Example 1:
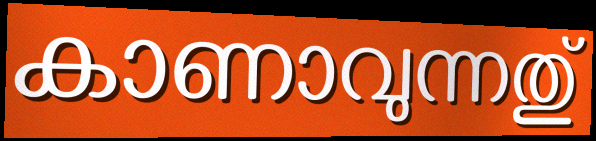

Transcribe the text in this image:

കാണാവുന്നതു്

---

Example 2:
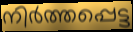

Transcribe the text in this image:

നിർത്തപ്പെട്ട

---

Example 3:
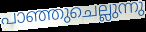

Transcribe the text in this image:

പാഞ്ഞുചെല്ലുന്നു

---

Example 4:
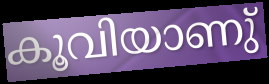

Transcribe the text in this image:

കൂവിയാണു്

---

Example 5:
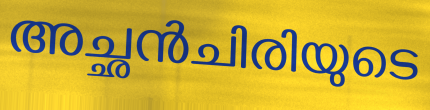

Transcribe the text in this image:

അച്ഛൻചിരിയുടെ